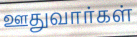
ஊதுவார்கள்